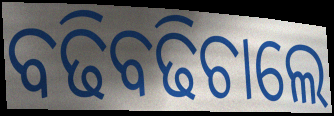
ବଢିବଢିଚାଲେ